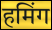
हमिंग